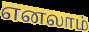
எனலாம்